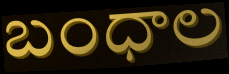
బంధాల